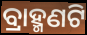
ବ୍ରାହ୍ମଣଟି